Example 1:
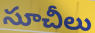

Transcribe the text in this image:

సూచీలు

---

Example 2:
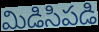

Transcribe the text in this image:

మిడిసిపడి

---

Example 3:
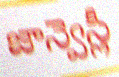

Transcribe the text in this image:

జాన్వెస్లీ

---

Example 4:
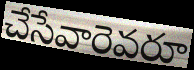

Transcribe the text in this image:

చేసేవారెవరూ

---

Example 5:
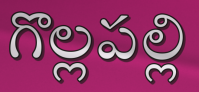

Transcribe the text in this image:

గొల్లపల్లి